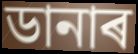
ডানাৰ